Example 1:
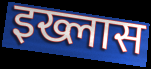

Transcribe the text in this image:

इख्लास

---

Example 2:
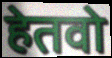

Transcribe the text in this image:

हेतवो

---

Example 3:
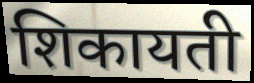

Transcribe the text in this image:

शिकायती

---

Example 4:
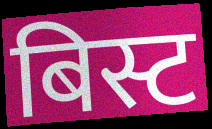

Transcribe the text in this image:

बिस्ट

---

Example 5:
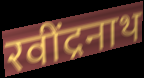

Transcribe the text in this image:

रवींद्रनाथ